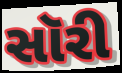
સૉરી